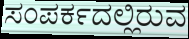
ಸಂಪರ್ಕದಲ್ಲಿರುವ